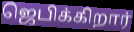
ஜெபிக்கிறார்